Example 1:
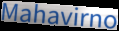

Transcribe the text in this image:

Mahavirno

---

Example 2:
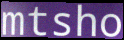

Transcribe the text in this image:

mtsho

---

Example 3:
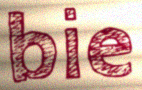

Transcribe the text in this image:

bie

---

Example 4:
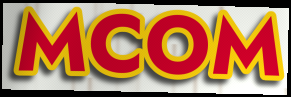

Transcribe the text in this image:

MCOM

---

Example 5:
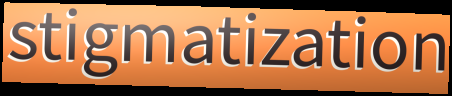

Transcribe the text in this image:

stigmatization